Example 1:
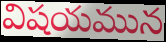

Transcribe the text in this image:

విషయమున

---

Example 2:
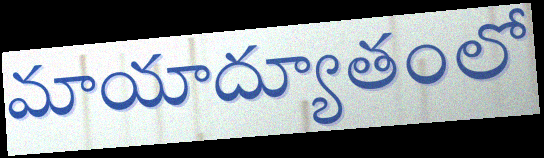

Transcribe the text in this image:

మాయాద్యూతంలో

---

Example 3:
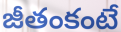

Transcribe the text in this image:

జీతంకంటే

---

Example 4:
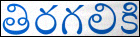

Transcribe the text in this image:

తిరగలికి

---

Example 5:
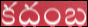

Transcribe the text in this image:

కదంబ